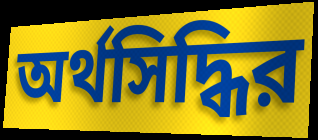
অর্থসিদ্ধির